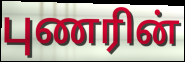
புணரின்